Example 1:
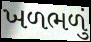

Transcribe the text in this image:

ખળભળું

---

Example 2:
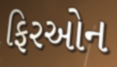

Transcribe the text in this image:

ફિરઓન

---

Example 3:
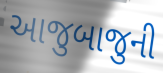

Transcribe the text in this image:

આજુબાજુની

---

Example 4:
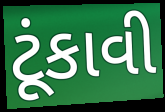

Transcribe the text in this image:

ટૂંકાવી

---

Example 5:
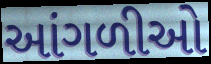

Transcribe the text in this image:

આંગળીઓ